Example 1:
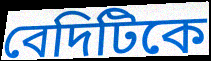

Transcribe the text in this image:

বেদিটিকে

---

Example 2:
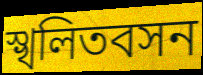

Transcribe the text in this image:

স্খলিতবসন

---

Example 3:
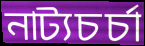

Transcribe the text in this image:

নাট্যচর্চা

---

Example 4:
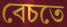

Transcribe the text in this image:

বেচতে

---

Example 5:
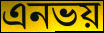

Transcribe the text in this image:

এনভয়